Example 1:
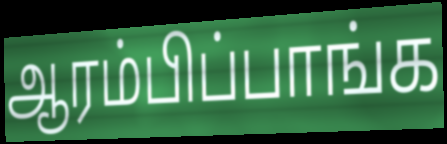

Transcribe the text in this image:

ஆரம்பிப்பாங்க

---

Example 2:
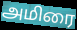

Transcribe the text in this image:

அமிரை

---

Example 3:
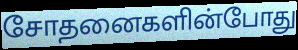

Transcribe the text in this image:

சோதனைகளின்போது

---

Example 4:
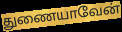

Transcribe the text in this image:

துணையாவேன்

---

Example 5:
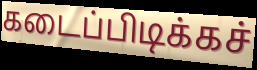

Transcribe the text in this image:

கடைப்பிடிக்கச்